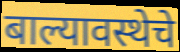
बाल्यावस्थेचे